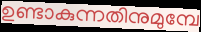
ഉണ്ടാകുന്നതിനുമുമ്പേ